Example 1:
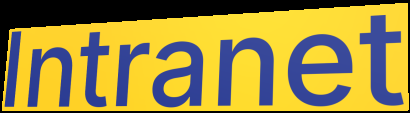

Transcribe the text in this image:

Intranet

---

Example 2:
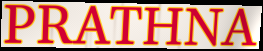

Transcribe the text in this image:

PRATHNA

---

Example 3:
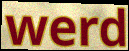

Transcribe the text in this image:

werd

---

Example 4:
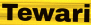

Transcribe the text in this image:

Tewari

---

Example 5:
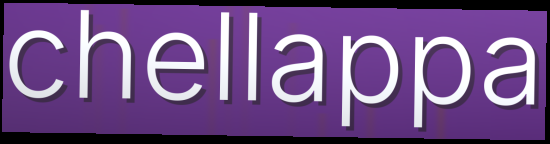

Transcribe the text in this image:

chellappa